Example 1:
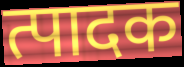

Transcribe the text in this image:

त्पादक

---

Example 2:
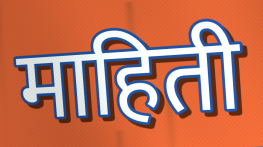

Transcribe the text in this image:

माहिती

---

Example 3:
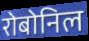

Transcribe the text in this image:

रोबोनिल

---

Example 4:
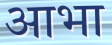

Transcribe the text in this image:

आभा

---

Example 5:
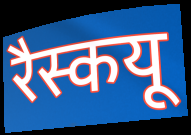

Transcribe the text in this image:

रैस्कयू